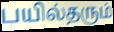
பயில்தரும்